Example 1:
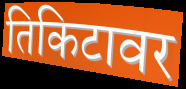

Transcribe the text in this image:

तिकिटावर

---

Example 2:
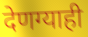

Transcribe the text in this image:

देणग्याही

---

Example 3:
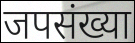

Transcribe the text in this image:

जपसंख्या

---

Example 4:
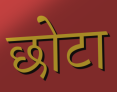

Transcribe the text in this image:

छोटा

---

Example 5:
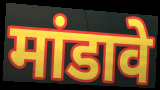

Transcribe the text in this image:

मांडावे